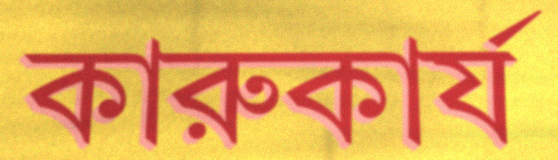
কারুকার্য